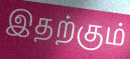
இதற்கும்